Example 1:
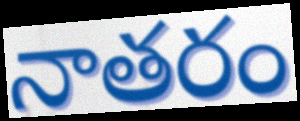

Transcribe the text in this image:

నాతరం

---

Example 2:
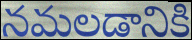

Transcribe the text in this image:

నమలడానికి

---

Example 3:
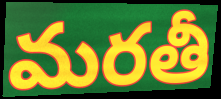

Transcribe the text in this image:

మరతీ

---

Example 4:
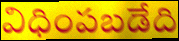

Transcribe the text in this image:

విధింపబడేది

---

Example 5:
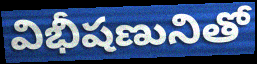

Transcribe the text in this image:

విభీషణునితో